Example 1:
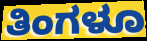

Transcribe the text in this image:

ತಿಂಗಳೂ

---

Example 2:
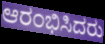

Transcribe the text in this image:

ಆರಂಭಿಸಿದರು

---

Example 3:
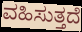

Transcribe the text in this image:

ವಹಿಸುತ್ತದೆ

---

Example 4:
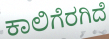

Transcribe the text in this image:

ಕಾಲಿಗೆರಗಿದೆ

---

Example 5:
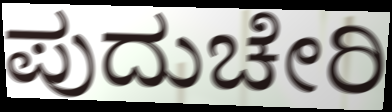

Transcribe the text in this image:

ಪುದುಚೇರಿ